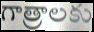
గాత్రాలకు